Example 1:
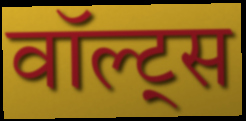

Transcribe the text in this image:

वॉल्ट्स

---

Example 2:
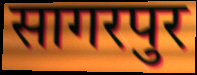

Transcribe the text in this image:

सागरपुर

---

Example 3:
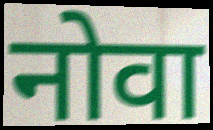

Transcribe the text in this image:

नोवा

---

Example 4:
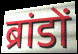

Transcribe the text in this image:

ब्रांडों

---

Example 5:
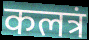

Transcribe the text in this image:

कलत्रं